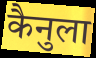
कैनुला